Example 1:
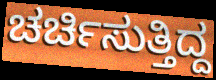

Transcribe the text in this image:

ಚರ್ಚಿಸುತ್ತಿದ್ದ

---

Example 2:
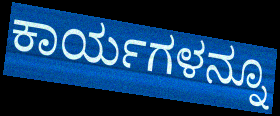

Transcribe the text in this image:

ಕಾರ್ಯಗಳನ್ನೂ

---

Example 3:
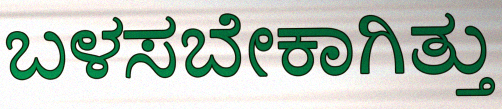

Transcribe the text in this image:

ಬಳಸಬೇಕಾಗಿತ್ತು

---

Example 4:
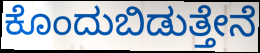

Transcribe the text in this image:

ಕೊಂದುಬಿಡುತ್ತೇನೆ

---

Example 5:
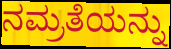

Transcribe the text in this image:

ನಮ್ರತೆಯನ್ನು